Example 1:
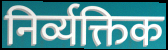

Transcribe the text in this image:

निर्व्यक्तिक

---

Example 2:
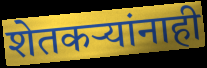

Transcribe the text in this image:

शेतकऱ्यांनाही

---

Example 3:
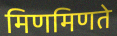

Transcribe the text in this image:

मिणमिणते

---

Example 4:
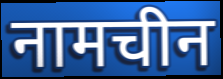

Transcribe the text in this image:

नामचीन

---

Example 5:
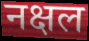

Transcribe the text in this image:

नक्षल